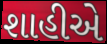
શાહીએ